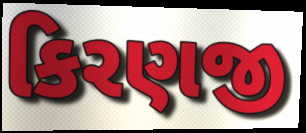
કિરણજી